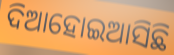
ଦିଆହୋଇଆସିଛି